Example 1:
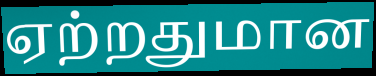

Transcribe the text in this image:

ஏற்றதுமான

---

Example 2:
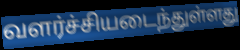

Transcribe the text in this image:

வளர்ச்சியடைந்துள்ளது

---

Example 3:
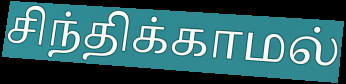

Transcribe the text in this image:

சிந்திக்காமல்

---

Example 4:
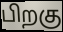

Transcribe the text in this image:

பிறகு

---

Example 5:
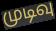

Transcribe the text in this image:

முடிவு